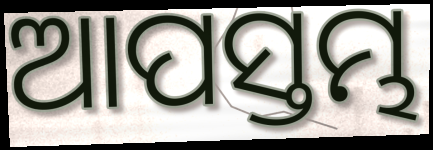
ଆପସ୍ତମ୍ଭ